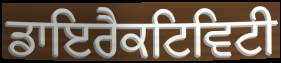
ਡਾਇਰੈਕਟਿਵਿਟੀ